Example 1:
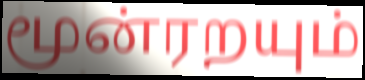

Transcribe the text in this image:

மூன்ரறயும்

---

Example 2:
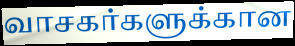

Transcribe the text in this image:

வாசகர்களுக்கான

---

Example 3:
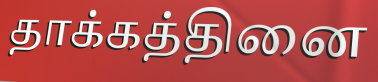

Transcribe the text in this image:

தாக்கத்தினை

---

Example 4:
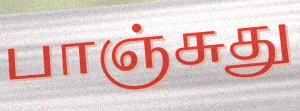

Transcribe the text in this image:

பாஞ்சுது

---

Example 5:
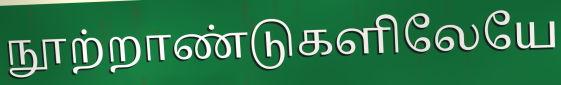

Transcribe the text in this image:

நூற்றாண்டுகளிலேயே